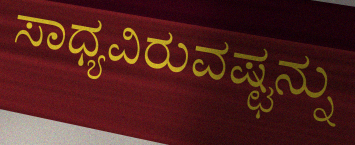
ಸಾಧ್ಯವಿರುವಷ್ಟನ್ನು